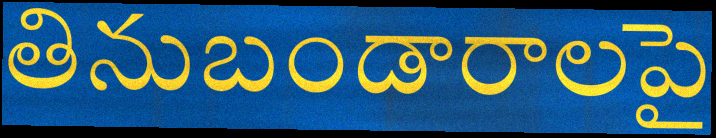
తినుబండారాలపై